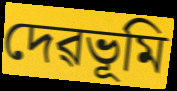
দেৱভূমি